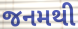
જનમથી